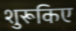
शुरूकिए